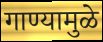
गाण्यामुळे